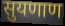
सुयणाण